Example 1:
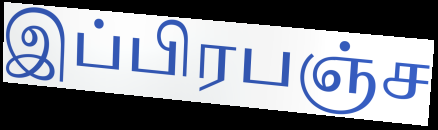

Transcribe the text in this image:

இப்பிரபஞ்ச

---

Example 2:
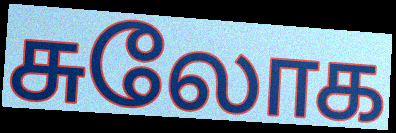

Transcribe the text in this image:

சுலோக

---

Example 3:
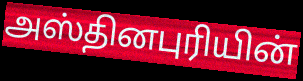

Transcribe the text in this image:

அஸ்தினபுரியின்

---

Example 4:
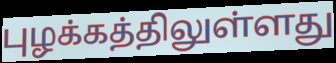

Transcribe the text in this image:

புழக்கத்திலுள்ளது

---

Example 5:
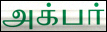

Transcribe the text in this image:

அக்பர்